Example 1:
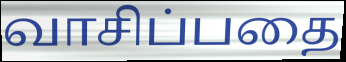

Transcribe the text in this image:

வாசிப்பதை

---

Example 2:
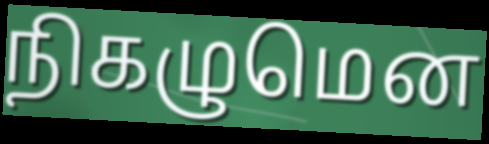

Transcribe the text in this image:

நிகழுமென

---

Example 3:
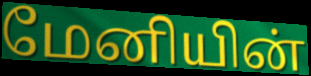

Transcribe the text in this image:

மேனியின்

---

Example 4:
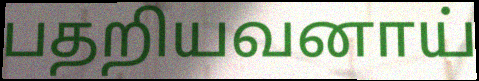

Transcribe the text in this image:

பதறியவனாய்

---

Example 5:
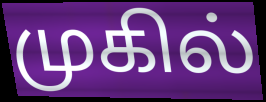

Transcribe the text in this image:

முகில்